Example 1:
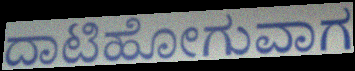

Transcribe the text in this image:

ದಾಟಿಹೋಗುವಾಗ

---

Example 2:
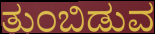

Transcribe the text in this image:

ತುಂಬಿಡುವ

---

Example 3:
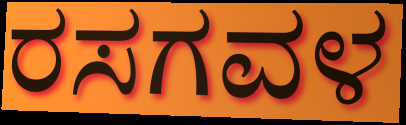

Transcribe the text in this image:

ರಸಗವಳ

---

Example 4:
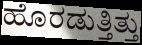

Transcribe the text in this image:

ಹೊರಡುತ್ತಿತ್ತು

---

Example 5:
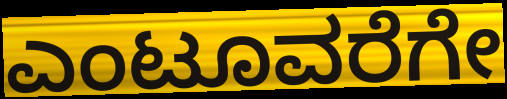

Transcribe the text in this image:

ಎಂಟೂವರೆಗೇ